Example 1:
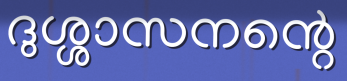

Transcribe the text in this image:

ദുശ്ശാസനന്റെ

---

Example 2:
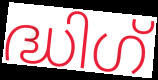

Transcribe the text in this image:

ദ്ധിഗ്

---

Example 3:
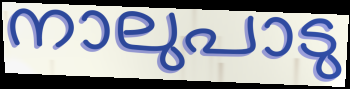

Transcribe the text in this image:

നാലുപാടു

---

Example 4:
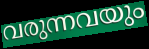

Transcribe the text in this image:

വരുന്നവയും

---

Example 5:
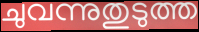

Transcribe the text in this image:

ചുവന്നുതുടുത്ത